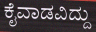
ಕೈವಾಡವಿದ್ದು